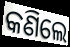
କଣିଲେ